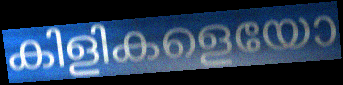
കിളികളെയോ